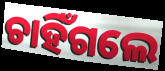
ଚାହିଁଗଲେ